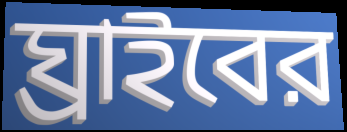
ঘ্রাইবের